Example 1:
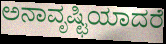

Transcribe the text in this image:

ಅನಾವೃಷ್ಟಿಯಾದರೆ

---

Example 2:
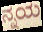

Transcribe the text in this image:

ನ್ನಯ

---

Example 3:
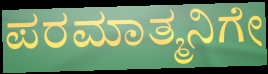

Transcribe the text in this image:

ಪರಮಾತ್ಮನಿಗೇ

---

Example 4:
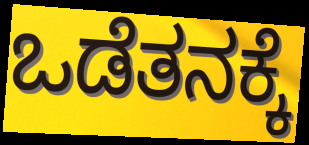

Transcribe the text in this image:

ಒಡೆತನಕ್ಕೆ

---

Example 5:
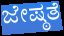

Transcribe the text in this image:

ಜೇಷ್ಠತೆ